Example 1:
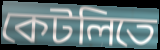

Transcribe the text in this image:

কেটলিতে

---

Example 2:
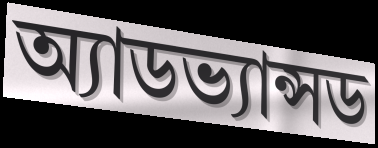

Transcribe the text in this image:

অ্যাডভ্যান্সড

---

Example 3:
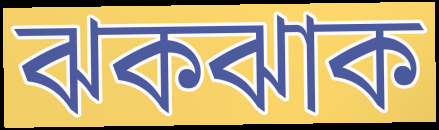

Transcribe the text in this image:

ঝকঝাক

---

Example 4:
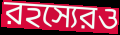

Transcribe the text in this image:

রহস্যেরও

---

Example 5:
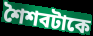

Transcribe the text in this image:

শৈশবটাকে